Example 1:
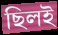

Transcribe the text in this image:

ছিলই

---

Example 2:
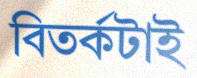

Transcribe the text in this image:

বিতর্কটাই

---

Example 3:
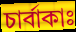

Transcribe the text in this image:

চার্বাকাঃ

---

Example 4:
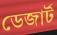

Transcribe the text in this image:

ডেজার্ট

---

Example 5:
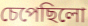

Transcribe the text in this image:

চেপেছিলো